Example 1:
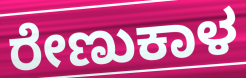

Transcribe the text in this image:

ರೇಣುಕಾಳ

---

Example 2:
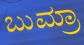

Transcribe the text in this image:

ಬುಮ್ರಾ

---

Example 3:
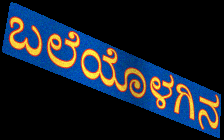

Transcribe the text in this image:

ಬಲೆಯೊಳಗಿನ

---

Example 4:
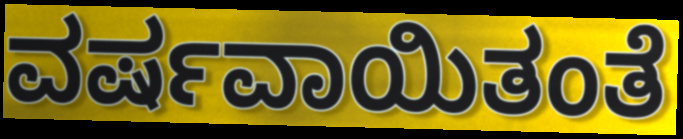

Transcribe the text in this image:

ವರ್ಷವಾಯಿತಂತೆ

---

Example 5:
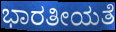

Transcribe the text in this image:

ಭಾರತೀಯತೆ